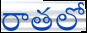
రాతలో